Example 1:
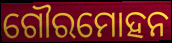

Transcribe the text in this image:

ଗୌରମୋହନ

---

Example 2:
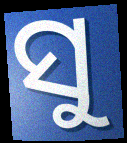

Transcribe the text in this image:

ସୁ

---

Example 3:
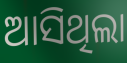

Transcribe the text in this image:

ଆସିଥିଲା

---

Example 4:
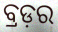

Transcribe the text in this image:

ବ୍ରଡ଼ର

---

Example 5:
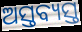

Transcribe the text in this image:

ଅସ୍ତବ୍ୟସ୍ତ